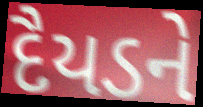
દૈયડને